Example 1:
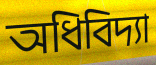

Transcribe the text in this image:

অধিবিদ্যা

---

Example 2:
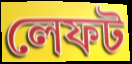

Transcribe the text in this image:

লেফট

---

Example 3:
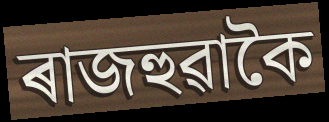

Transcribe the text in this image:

ৰাজহুৱাকৈ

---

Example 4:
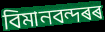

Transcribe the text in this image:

বিমানবন্দৰৰ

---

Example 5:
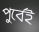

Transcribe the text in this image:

পুৰ্বেই